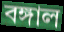
বঙ্গাল